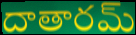
దాతారమ్